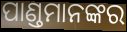
ପାଣ୍ଡମାନଙ୍କର